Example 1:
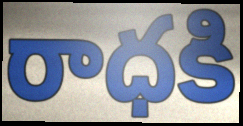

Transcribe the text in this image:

రాధకి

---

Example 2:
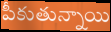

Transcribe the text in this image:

పీకుతున్నాయి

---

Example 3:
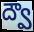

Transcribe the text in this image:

ద్వౌ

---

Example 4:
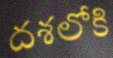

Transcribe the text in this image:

దశలోకి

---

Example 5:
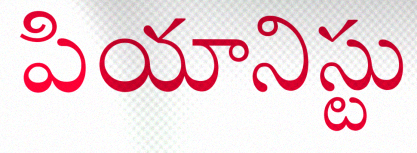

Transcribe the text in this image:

పియానిస్టు